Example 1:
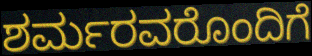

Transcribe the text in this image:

ಶರ್ಮರವರೊಂದಿಗೆ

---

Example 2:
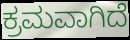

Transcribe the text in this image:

ಕ್ರಮವಾಗಿದೆ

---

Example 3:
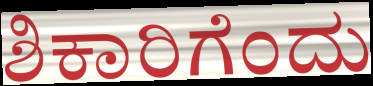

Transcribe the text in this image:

ಶಿಕಾರಿಗೆಂದು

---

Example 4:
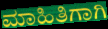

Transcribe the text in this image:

ಮಾಹಿತಿಗಾಗಿ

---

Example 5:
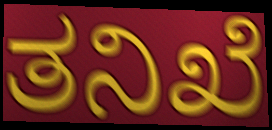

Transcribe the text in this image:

ತನಿಖೆ